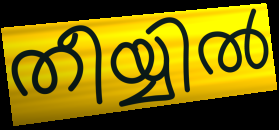
തീയ്യിൽ